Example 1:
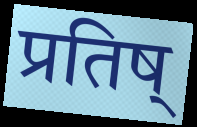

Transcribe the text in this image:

प्रतिष्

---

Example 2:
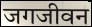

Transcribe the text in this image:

जगजीवन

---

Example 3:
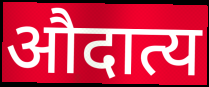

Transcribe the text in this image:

औदात्य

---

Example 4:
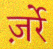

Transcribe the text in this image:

ज़र्रे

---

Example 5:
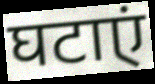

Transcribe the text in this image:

घटाएं